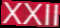
XXII